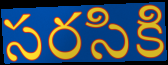
సరసికి